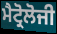
ਮੈਟ੍ਰੋਲੋਜੀ